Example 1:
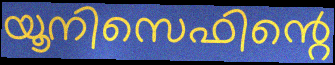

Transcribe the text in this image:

യൂനിസെഫിന്റെ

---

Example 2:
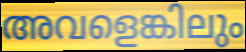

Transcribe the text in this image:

അവളെങ്കിലും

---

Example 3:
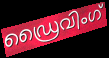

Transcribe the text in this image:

ഡ്രൈവിംഗ്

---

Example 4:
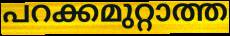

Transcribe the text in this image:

പറക്കമുറ്റാത്ത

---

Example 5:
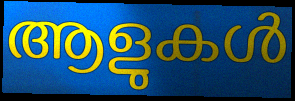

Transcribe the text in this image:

ആളുകൾ